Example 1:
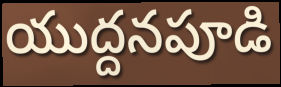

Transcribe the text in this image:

యుద్దనపూడి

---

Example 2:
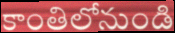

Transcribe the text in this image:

కాంతిలోనుండి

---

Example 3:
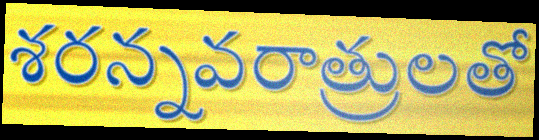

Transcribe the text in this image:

శరన్నవరాత్రులతో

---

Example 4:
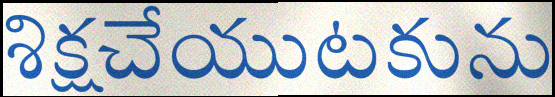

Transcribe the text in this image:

శిక్షచేయుటకును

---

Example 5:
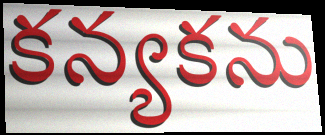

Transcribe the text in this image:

కన్యకను